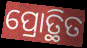
ପ୍ରୋତ୍ଥିତ